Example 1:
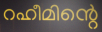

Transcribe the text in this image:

റഹീമിന്റെ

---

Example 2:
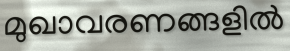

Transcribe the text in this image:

മുഖാവരണങ്ങളിൽ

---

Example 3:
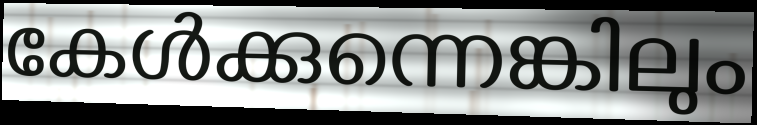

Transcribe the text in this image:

കേൾക്കുന്നെങ്കിലും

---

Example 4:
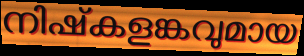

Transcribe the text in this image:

നിഷ്‌കളങ്കവുമായ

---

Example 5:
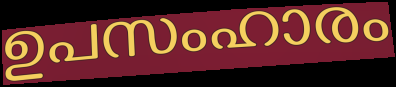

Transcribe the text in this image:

ഉപസംഹാരം